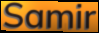
Samir